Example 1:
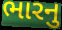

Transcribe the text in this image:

ભારનુ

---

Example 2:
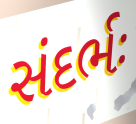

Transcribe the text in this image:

સંદર્ભઃ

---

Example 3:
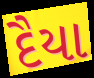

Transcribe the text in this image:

દૈયા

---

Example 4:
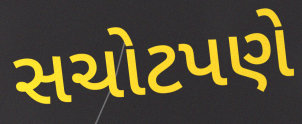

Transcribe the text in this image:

સચોટપણે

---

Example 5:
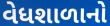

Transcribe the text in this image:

વેધશાળાનો